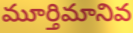
మూర్తిమానివ